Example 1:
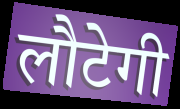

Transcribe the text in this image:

लौटेगी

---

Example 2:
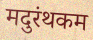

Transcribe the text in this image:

मदुरंथकम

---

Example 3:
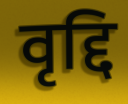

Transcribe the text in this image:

वृद्दि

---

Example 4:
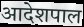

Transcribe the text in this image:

आदेशपाल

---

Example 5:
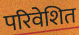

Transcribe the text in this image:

परिवेशित